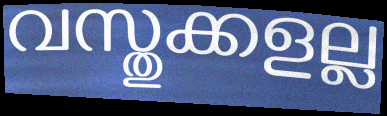
വസ്തുക്കളല്ല